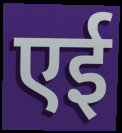
एई